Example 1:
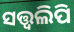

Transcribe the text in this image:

ସତ୍ତ୍ୱଲିପି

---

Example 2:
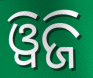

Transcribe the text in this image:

ୱିଜି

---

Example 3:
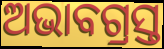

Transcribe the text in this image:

ଅଭାବଗ୍ରସ୍ତ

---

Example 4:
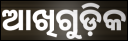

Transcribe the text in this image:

ଆଖିଗୁଡ଼ିକ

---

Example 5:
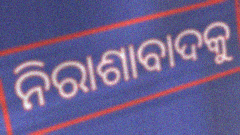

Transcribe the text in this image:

ନିରାଶାବାଦକୁ